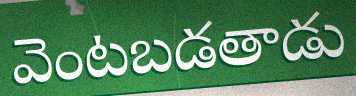
వెంటబడతాడు